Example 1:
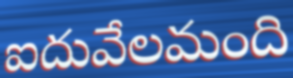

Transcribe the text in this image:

ఐదువేలమంది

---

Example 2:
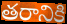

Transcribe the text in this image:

తరానికి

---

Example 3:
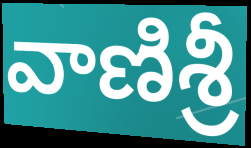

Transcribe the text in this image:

వాణిశ్రీ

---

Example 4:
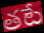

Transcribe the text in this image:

తటే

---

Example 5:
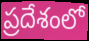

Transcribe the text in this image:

ప్రదేశంలో